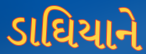
ડાઘિયાને